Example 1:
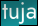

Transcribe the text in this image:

tuja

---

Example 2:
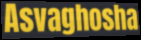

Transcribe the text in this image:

Asvaghosha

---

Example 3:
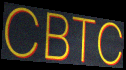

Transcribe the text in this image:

CBTC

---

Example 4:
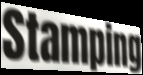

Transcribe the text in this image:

Stamping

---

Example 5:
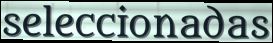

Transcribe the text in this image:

seleccionadas